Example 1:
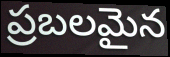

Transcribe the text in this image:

ప్రబలమైన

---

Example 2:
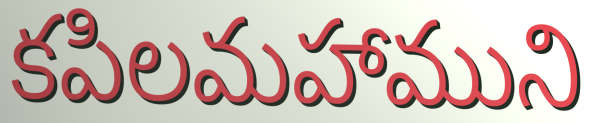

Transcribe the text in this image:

కపిలమహాముని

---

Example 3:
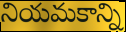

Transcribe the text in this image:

నియమకాన్ని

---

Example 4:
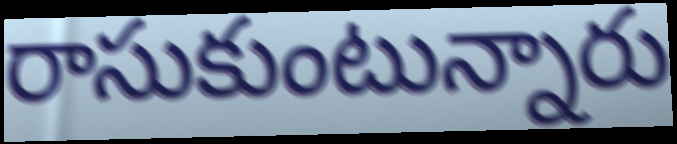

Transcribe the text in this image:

రాసుకుంటున్నారు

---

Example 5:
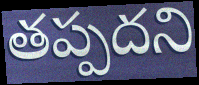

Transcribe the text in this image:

తప్పదని